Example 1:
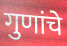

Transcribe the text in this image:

गुणांचे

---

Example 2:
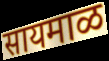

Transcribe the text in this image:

सायमाळ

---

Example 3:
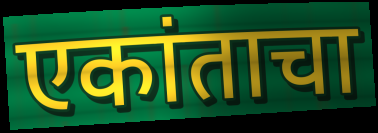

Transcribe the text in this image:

एकांताचा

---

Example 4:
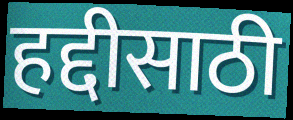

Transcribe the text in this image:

हद्दीसाठी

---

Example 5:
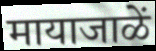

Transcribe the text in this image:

मायाजाळें